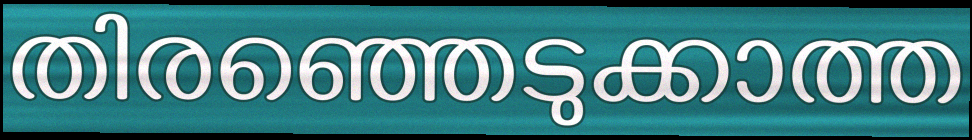
തിരഞ്ഞെടുക്കാത്ത